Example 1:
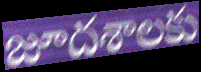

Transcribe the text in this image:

జూదశాలకు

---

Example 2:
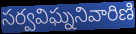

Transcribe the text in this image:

సర్వవిఘ్ననివారిణి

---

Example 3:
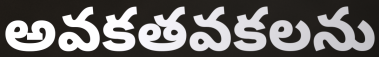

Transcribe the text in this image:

అవకతవకలను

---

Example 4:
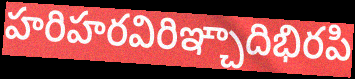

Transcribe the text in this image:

హరిహరవిరిఞ్చాదిభిరపి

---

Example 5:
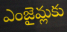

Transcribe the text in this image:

ఎంజైమ్లకు